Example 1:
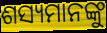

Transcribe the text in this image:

ଶସ୍ୟମାନଙ୍କୁ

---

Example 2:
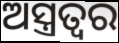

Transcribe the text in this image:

ଅସ୍ତ୍ରତ୍ୱର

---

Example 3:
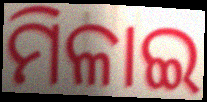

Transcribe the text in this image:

ମିଳାଇ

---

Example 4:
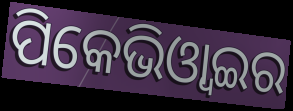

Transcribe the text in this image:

ପିକେଭିଓ୍ବାଇର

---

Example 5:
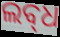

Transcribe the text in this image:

ଲବ୍‌ଧ